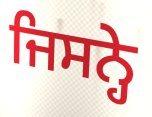
ਜਿਸਨ੍ਹੇ